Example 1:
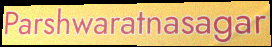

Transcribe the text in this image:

Parshwaratnasagar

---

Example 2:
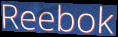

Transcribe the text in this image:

Reebok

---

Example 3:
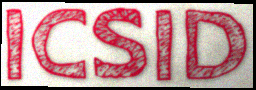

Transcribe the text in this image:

ICSID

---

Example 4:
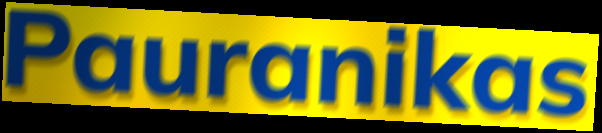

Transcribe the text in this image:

Pauranikas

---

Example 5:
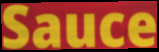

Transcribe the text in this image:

Sauce